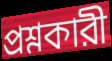
প্রশ্নকারী